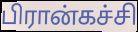
பிரான்கச்சி